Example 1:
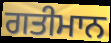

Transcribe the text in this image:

ਗਤੀਮਾਨ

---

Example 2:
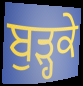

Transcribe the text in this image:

ਬੁੜ੍ਹਕੇ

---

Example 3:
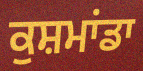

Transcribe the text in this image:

ਕੁਸ਼ਮਾਂਡਾ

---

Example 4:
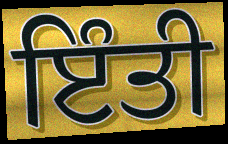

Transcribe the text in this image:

ਇੰਤੀ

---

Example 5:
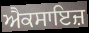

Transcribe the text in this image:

ਐਕਸਾਇਜ਼